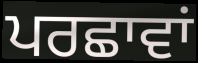
ਪਰਛਾਵਾਂ